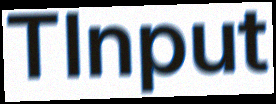
TInput